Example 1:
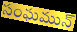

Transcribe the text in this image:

సంఘమున్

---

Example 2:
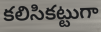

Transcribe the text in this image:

కలిసికట్టుగా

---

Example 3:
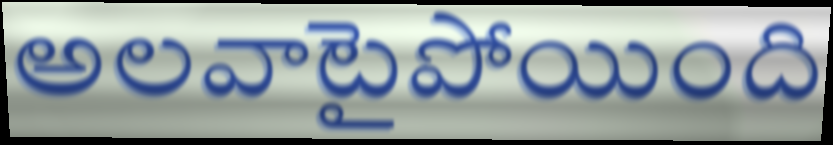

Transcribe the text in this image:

అలవాటైపోయింది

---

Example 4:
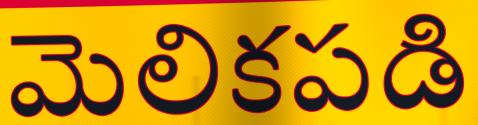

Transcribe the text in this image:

మెలికపడి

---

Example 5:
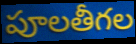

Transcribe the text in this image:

పూలతీగల